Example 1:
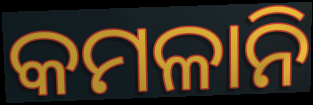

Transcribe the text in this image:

କମଳାନି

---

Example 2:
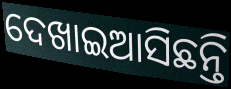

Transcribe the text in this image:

ଦେଖାଇଆସିଛନ୍ତି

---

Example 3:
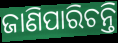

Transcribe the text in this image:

ଜାଣିପାରିଚନ୍ତି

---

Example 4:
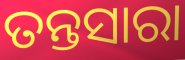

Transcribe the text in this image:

ତନ୍ତସାରା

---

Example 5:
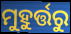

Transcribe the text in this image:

ମୁହୁର୍ତ୍ତରୁ